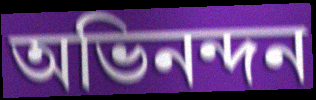
অভিনন্দন